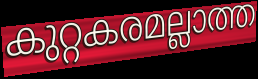
കുറ്റകരമല്ലാത്ത